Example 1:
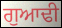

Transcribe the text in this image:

ਗੁਆਢੀ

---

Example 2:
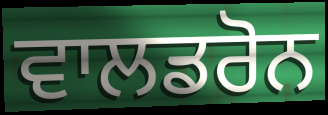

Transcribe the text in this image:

ਵਾਲਡਰੋਨ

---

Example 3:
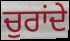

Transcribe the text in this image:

ਚੁਰਾਂਦੇ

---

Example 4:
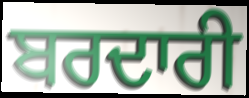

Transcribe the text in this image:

ਬਰਦਾਰੀ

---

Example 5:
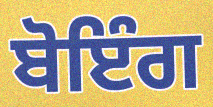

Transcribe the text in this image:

ਬੋਇੰਗ